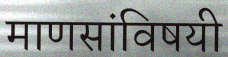
माणसांविषयी